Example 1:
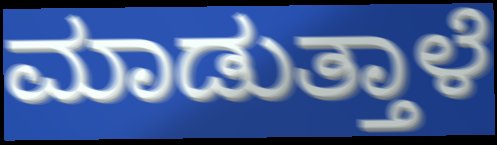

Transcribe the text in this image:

ಮಾಡುತ್ತಾಳೆ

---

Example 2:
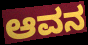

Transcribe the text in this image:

ಆವನ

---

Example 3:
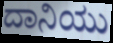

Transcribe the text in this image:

ದಾನಿಯು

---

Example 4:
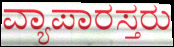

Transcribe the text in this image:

ವ್ಯಾಪಾರಸ್ತರು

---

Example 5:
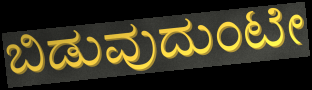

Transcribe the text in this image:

ಬಿಡುವುದುಂಟೇ